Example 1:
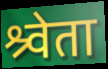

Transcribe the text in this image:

श्र्वेता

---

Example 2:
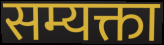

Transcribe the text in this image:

सम्यक्ता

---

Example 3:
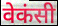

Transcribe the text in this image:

वेकंसी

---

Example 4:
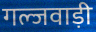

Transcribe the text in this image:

गल्जवाड़ी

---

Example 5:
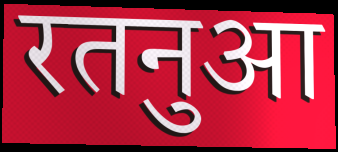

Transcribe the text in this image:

रतनुआ